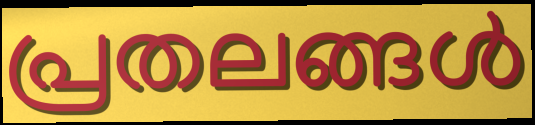
പ്രതലങ്ങൾ